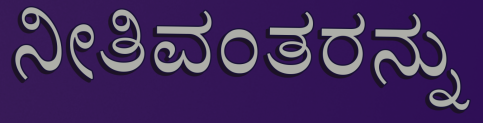
ನೀತಿವಂತರನ್ನು